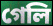
গেলি